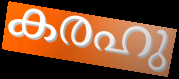
കരഹു